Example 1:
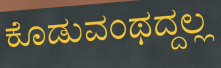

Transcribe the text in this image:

ಕೊಡುವಂಥದ್ದಲ್ಲ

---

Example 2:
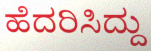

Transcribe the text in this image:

ಹೆದರಿಸಿದ್ದು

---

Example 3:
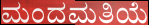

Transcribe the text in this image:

ಮಂದಮತಿಯೆ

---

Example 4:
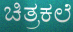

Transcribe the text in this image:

ಚಿತ್ರಕಲೆ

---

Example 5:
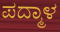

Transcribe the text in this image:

ಪದ್ಮಾಳ